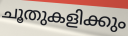
ചൂതുകളിക്കും